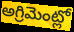
అగ్రిమెంట్లో